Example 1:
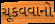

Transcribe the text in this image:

ચૂકવવાનો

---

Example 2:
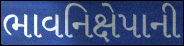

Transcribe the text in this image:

ભાવનિક્ષેપાની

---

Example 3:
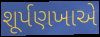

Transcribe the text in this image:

શૂર્પણખાએ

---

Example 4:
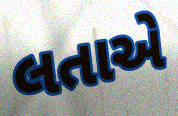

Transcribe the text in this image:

લતાએ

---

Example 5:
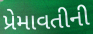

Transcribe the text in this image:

પ્રેમાવતીની